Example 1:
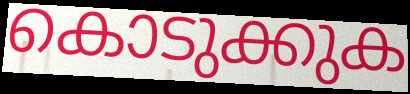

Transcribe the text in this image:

കൊടുക്കുക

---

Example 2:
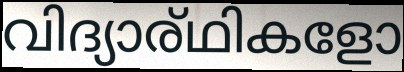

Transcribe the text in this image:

വിദ്യാര്ഥികളോ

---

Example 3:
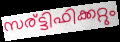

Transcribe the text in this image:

സര്ട്ടിഫിക്കറ്റും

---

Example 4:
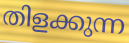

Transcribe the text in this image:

തിളക്കുന്ന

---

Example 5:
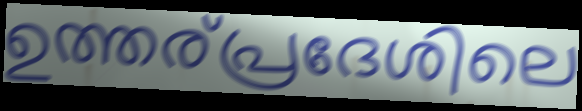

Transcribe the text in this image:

ഉത്തര്പ്രദേശിലെ